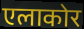
एलाकोर